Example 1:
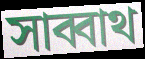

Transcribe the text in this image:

সাব্বাথ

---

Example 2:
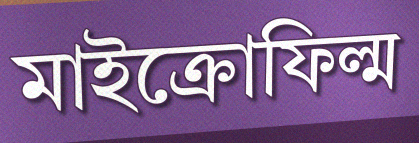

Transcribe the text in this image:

মাইক্রোফিল্ম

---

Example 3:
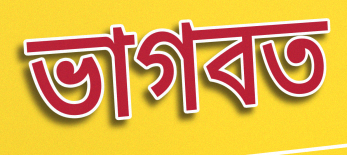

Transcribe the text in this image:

ভাগবত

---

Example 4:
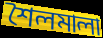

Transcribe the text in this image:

শৈলমালা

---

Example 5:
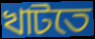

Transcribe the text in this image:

খাটতে